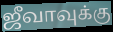
ஜீவாவுக்கு